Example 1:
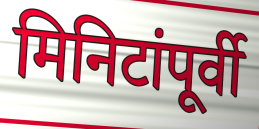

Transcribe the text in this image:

मिनिटांपूर्वी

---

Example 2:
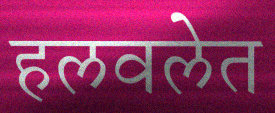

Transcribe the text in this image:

हलवलेत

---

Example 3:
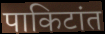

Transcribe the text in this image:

पाकिटांत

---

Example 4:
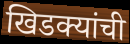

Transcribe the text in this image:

खिडक्यांची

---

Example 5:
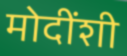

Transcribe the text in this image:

मोदींशी